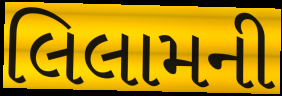
લિલામની